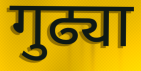
गुढ्या